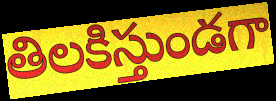
తిలకిస్తుండగా